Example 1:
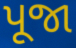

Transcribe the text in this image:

પૂજા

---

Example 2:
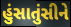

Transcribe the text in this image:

હુંસાતુંસીને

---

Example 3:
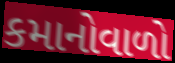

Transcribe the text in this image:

કમાનોવાળો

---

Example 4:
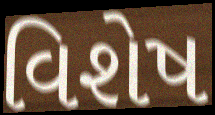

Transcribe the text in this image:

વિશેષ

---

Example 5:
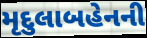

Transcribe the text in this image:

મૃદુલાબહેનની